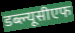
डब्ल्यूसीएफ